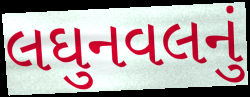
લઘુનવલનું